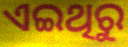
ଏଇଥିରୁ